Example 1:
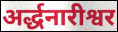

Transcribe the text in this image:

अर्द्धनारीश्वर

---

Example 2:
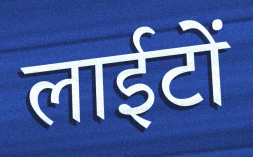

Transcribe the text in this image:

लाईटों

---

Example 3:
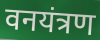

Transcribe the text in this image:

वनयंत्रण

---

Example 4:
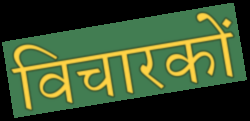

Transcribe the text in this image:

विचारकों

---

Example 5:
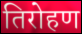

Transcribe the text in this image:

तिरोहण